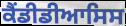
ਕੈਂਡੀਡੀਆਸਿਸ